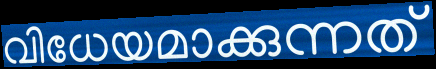
വിധേയമാക്കുന്നത്